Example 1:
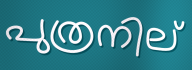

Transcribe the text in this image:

പുത്രനില്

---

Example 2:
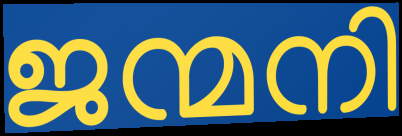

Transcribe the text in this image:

ജന്മനി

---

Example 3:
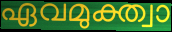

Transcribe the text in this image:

ഏവമുക്ത്വാ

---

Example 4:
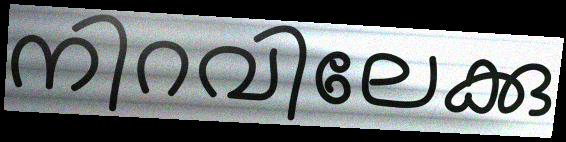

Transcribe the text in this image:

നിറവിലേക്കു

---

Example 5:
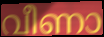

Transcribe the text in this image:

വീണാ